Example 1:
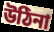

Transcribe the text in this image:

উঠিনা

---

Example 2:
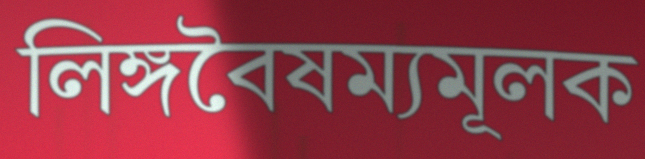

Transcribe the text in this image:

লিঙ্গবৈষম্যমূলক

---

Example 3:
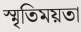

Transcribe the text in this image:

স্মৃতিময়তা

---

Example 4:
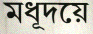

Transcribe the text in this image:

মধূদয়ে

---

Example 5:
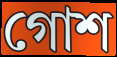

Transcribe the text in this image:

গোশ